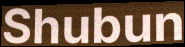
Shubun